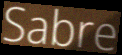
Sabre